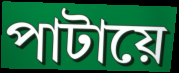
পাটায়ে